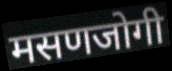
मसणजोगी